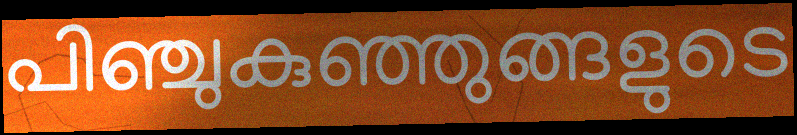
പിഞ്ചുകുഞ്ഞുങ്ങളുടെ